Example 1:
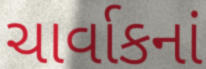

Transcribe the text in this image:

ચાર્વાકનાં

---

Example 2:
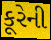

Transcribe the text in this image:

કૂરેની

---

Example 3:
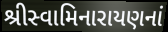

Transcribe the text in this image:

શ્રીસ્વામિનારાયણનાં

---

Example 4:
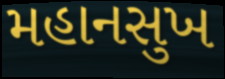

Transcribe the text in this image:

મહાનસુખ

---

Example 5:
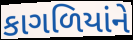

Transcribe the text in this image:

કાગળિયાંને